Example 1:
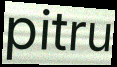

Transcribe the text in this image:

pitru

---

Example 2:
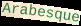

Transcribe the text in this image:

Arabesque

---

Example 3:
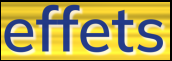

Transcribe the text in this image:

effets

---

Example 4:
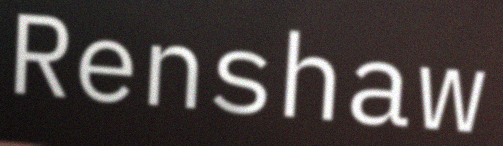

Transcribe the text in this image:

Renshaw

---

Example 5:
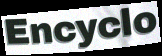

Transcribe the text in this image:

Encyclo